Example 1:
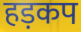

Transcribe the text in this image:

हड़कप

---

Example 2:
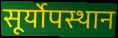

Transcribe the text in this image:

सूर्योपस्थान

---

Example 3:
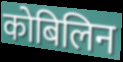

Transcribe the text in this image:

कोबिलिन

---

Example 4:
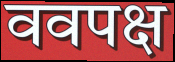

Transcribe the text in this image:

ववपक्ष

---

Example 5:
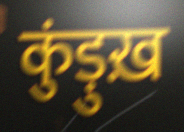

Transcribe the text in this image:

कुंड़ुख़